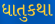
ધાતુકથા